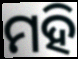
ମହି